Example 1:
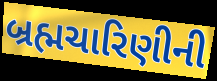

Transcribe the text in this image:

બ્રહ્મચારિણીની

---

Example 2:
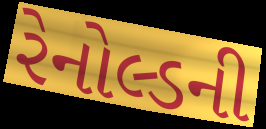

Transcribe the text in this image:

રેનોલ્ડની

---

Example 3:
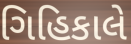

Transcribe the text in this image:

ગિહિકાલે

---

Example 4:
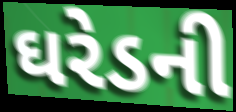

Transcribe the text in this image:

ઘરેડની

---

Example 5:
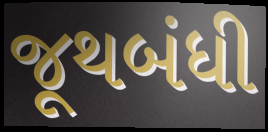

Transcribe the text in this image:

જૂથબંધી